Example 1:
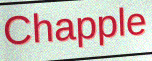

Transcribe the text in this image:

Chapple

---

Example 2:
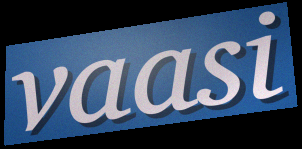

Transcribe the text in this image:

vaasi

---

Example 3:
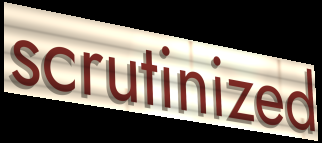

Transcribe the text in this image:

scrutinized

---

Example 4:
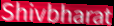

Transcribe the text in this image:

Shivbharat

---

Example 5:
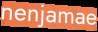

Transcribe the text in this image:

nenjamae